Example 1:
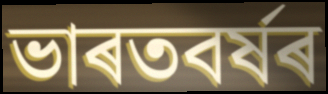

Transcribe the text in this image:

ভাৰতবৰ্ষৰ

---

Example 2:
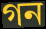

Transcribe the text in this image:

গন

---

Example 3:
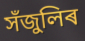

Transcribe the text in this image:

সঁজুলিৰ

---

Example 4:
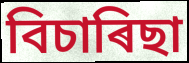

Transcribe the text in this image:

বিচাৰিছা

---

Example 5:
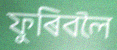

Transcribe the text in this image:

ফুৰিবলৈ